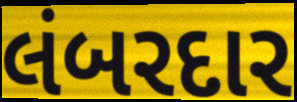
લંબરદાર